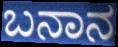
ಬನಾನ